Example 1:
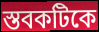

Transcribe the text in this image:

স্তবকটিকে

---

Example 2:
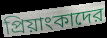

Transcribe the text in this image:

প্রিয়াংকাদের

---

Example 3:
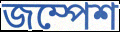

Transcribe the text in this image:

জম্পেশ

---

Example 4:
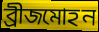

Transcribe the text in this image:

ব্রীজমোহন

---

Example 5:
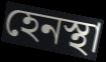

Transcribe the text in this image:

হেনস্থা